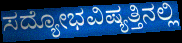
ಸದ್ಯೋಭವಿಷ್ಯತ್ತಿನಲ್ಲಿ